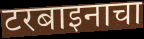
टरबाइनाचा